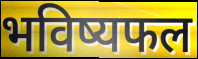
भविष्यफल